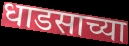
धाडसाच्या